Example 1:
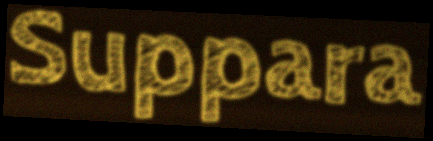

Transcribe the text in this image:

Suppara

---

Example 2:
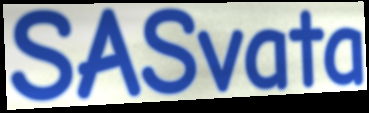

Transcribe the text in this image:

SASvata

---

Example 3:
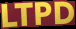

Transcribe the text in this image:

LTPD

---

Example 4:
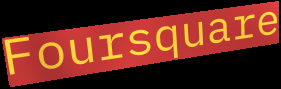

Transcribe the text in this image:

Foursquare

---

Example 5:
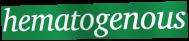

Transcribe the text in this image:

hematogenous